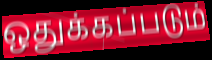
ஒதுக்கப்படும்